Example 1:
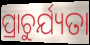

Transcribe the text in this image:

ପ୍ରାଚୁର୍ଯ୍ୟତା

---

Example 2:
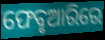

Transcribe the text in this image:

ଫେବୃଆରିରେ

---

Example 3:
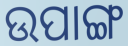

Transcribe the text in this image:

ଉପାଙ୍ଗ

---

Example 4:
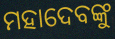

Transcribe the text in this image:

ମହାଦେବଙ୍କୁ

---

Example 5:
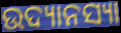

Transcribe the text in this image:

ଉଦ୍ୟାନସ୍ୟା